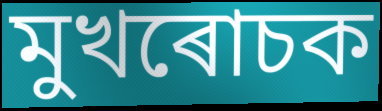
মুখৰোচক